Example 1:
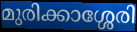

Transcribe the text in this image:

മുരിക്കാശ്ശേരി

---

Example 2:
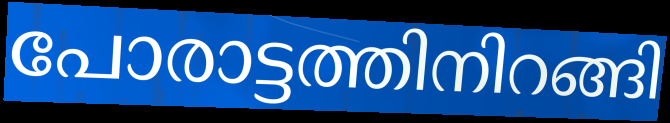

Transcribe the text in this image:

പോരാട്ടത്തിനിറങ്ങി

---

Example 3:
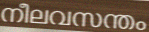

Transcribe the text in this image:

നീലവസന്തം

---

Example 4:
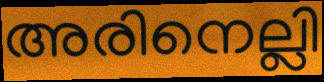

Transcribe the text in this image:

അരിനെല്ലി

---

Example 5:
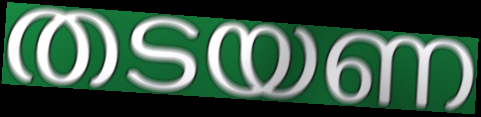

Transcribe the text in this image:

തടയണ